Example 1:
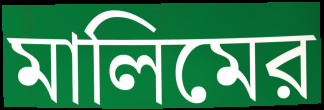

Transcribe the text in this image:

মালিমের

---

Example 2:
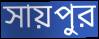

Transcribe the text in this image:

সায়পুর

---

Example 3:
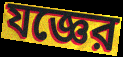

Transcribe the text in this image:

যজ্ঞের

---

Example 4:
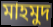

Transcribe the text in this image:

মাহমুদ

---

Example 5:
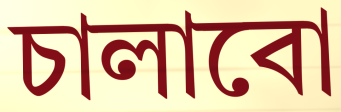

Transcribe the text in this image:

চালাবো